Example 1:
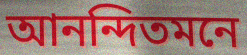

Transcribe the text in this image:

আনন্দিতমনে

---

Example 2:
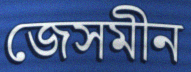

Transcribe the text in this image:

জেসমীন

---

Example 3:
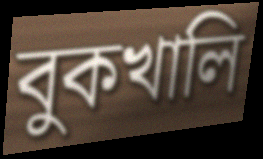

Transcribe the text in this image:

বুকখালি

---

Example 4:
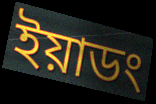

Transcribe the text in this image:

ইয়াডং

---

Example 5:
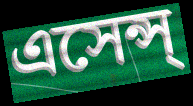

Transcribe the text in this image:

এসেন্স্